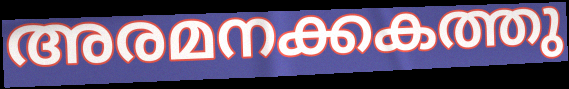
അരമനക്കകത്തു